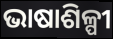
ଭାଷାଶିଳ୍ପୀ